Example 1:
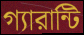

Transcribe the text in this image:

গ্যারান্টি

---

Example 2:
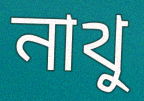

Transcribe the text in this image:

নাথু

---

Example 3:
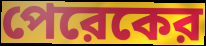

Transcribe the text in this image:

পেরেকের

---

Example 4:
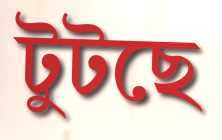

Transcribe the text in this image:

টুটছে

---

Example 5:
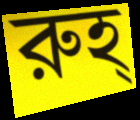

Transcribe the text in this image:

রুহ্